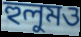
হুলুমও